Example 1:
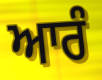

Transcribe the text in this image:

ਆਰੰ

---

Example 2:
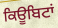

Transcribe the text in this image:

ਕਿਊਬਿਟਾਂ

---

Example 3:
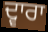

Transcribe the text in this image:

ਦ੍ਵਾਰਾ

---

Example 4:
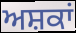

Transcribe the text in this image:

ਅਸ਼ਕਾਂ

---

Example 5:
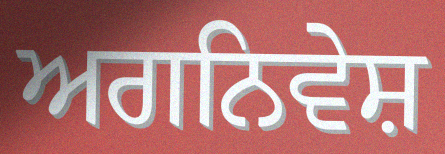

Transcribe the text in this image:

ਅਗਨਿਵੇਸ਼